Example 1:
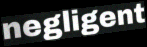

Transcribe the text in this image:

negligent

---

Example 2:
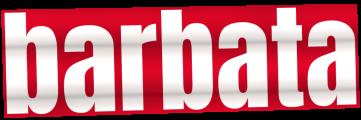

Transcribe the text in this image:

barbata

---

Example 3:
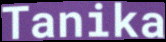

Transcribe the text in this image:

Tanika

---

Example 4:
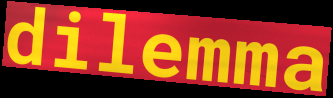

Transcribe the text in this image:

dilemma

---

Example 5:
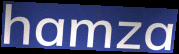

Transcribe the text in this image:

hamza